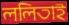
ললিতাই